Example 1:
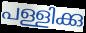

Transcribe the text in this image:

പള്ളിക്കു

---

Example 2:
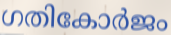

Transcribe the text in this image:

ഗതികോർജം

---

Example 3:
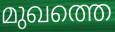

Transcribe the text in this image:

മുഖത്തെ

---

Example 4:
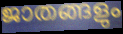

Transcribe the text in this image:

ജാതങ്ങളും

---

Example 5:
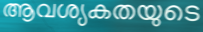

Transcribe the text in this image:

ആവശ്യകതയുടെ